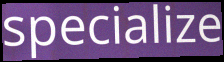
specialize